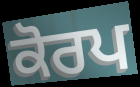
ਕੋਰਪ